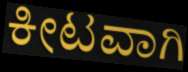
ಕೀಟವಾಗಿ